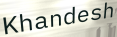
Khandesh